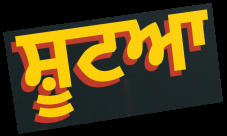
ਸ਼ੂਟਆ